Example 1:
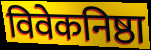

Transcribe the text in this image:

विवेकनिष्ठा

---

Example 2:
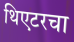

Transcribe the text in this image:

थिएटरचा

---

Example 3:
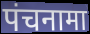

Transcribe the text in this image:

पंचनामा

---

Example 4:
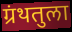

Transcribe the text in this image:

ग्रंथतुला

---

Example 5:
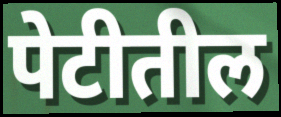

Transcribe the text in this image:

पेटीतील